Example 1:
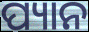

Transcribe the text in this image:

ପ୍ୟାନ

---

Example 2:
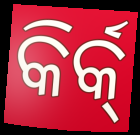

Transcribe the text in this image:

କିର୍କ୍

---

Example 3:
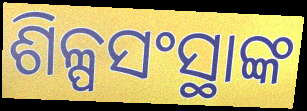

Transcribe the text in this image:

ଶିଳ୍ପସଂସ୍ଥାଙ୍କ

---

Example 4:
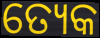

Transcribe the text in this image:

ତ୍ଯେକ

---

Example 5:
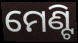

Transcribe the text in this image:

ମେଣ୍ଟି